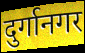
दुर्गानगर